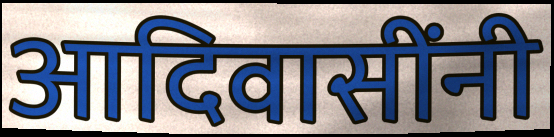
आदिवासींनी